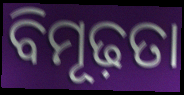
ବିମୂଢ଼ତା